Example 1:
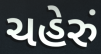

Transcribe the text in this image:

ચહેરું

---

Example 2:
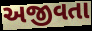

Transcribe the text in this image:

અજીવતા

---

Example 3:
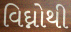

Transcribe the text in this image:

વિઘ્નોથી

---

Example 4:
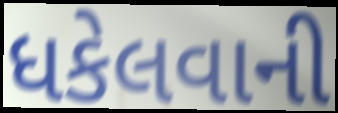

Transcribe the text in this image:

ધકેલવાની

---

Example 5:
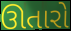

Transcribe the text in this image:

ઊતારો